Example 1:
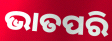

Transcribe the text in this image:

ଭାତପରି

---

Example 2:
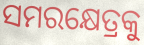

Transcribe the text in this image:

ସମରକ୍ଷେତ୍ରକୁ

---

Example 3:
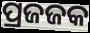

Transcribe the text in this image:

ପ୍ରଜଜକ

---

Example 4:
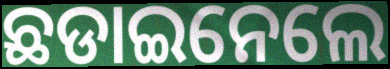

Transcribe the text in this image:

ଛଡାଇନେଲେ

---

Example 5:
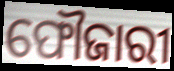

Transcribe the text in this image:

ଫୌଜାରୀ